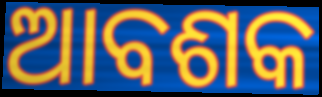
ଆବଶକ